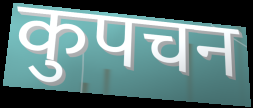
कुपचन